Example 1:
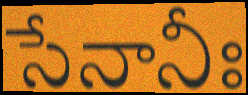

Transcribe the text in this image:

సేనానీః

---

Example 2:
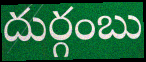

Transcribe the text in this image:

దుర్గంబు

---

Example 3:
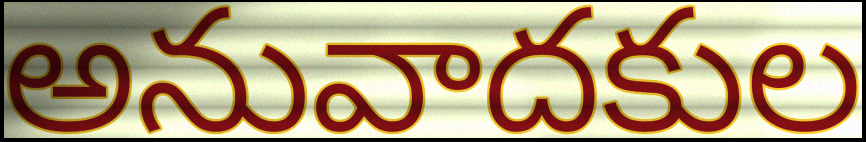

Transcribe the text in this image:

అనువాదకుల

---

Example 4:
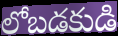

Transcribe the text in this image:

లోబడకుడి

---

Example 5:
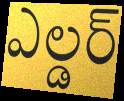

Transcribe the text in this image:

ఎల్డర్